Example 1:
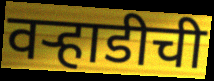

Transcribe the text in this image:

वऱ्हाडीची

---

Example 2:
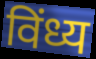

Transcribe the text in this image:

विंध्य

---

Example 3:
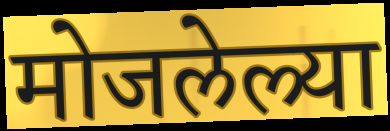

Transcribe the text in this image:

मोजलेल्या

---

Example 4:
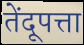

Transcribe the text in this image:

तेंदूपत्ता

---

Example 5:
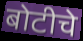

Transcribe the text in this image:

बोटीचे